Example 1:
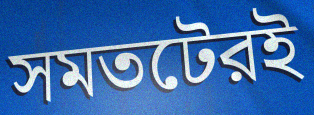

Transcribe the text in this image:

সমতটেরই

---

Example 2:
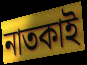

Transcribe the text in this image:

নাতকাই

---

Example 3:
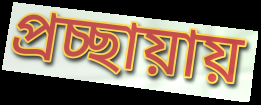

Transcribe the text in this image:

প্রচ্ছায়ায়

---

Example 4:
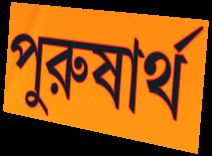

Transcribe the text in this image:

পুরুষার্থ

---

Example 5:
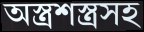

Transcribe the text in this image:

অস্ত্রশস্ত্রসহ